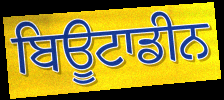
ਬਿਊਟਾਡੀਨ